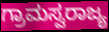
ಗ್ರಾಮಸ್ವರಾಜ್ಯ